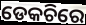
ଡେକଚିରେ